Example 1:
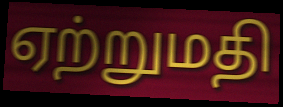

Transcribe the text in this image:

ஏற்றுமதி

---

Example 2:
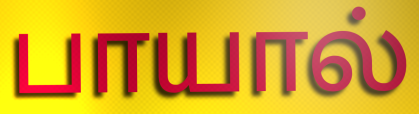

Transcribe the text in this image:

பாயால்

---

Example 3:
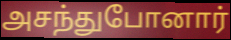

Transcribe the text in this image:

அசந்துபோனார்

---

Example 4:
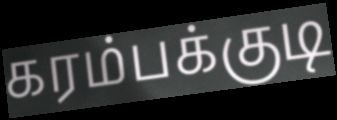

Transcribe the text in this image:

கரம்பக்குடி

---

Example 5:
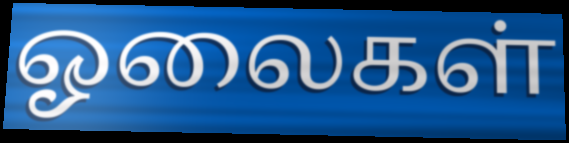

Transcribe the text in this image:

ஓலைகள்